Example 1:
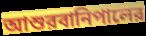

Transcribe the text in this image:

আশুরবানিপালের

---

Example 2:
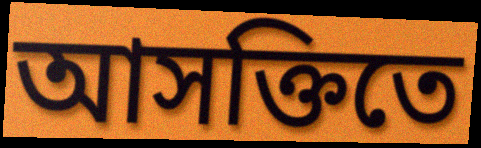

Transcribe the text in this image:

আসক্তিতে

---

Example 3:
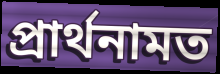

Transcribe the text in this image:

প্রার্থনামত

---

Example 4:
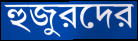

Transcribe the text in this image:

হুজুরদের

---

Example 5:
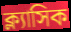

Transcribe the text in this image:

ক্ল্যাসিক